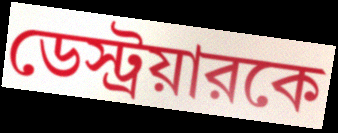
ডেস্ট্রয়ারকে